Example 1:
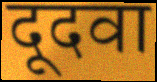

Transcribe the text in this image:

दूदवा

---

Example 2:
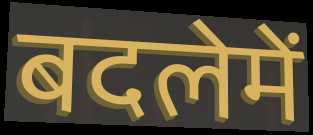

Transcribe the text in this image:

बदलेमें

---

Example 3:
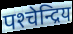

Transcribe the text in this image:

पश्चेन्द्रिय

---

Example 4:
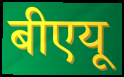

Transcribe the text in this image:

बीएयू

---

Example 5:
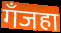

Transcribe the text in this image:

गँजहा